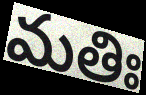
మతిః